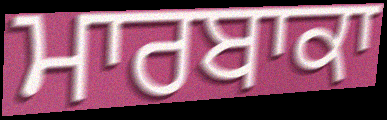
ਮਾਰਬਾਕਾ